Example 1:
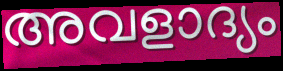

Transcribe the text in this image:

അവളാദ്യം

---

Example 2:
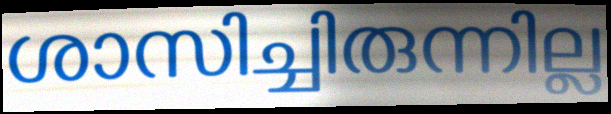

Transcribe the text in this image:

ശാസിച്ചിരുന്നില്ല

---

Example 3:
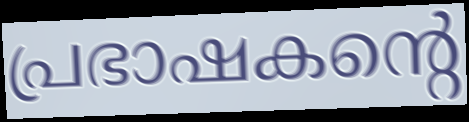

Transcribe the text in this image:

പ്രഭാഷകന്റെ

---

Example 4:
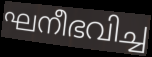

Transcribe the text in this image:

ഘനീഭവിച്ച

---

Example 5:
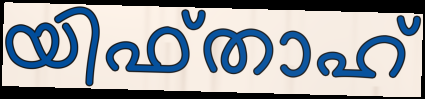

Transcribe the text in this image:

യിഫ്താഹ്